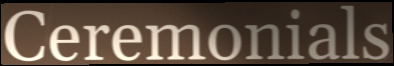
Ceremonials